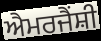
ਐਮਰਜੈਂਸ਼ੀ